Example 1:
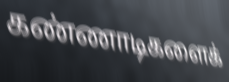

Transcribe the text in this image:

கண்ணாடிகளைக்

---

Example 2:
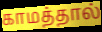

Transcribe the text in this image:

காமத்தால்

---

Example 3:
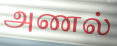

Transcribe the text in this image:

அணல்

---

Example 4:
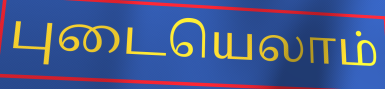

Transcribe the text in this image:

புடையெலாம்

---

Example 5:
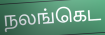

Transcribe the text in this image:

நலங்கெட